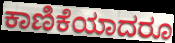
ಕಾಣಿಕೆಯಾದರೂ